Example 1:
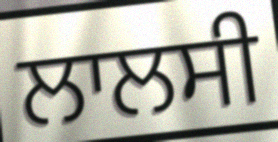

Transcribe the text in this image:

ਲਾਲਸੀ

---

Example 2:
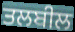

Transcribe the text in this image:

ਤਲਬੀਲ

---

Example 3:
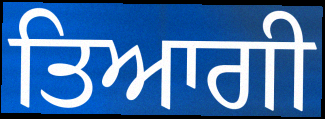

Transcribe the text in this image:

ਤਿਆਗੀ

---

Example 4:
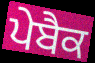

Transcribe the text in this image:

ਪੇਬੈਕ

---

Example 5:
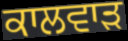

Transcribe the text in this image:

ਕਾਲਵਾੜ